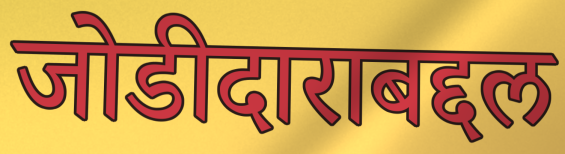
जोडीदाराबद्दल